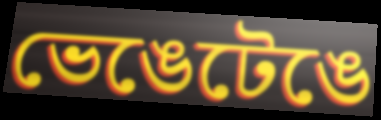
ভেঙেটেঙে